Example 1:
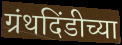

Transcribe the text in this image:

ग्रंथदिंडीच्या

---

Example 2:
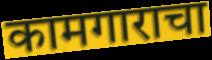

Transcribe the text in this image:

कामगाराचा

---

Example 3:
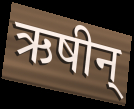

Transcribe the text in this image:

ऋषीन्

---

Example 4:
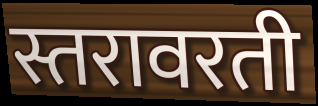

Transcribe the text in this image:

स्तरावरती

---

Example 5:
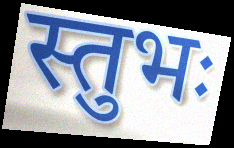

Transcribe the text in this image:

स्तुभः